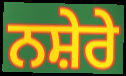
ਨਸ਼ੇਰੇ